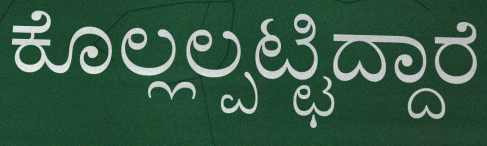
ಕೊಲ್ಲಲ್ಪಟ್ಟಿದ್ದಾರೆ